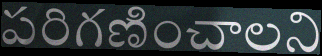
పరిగణించాలని